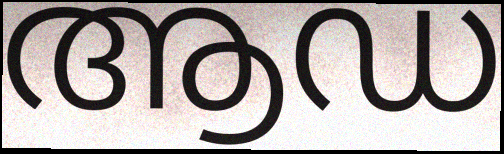
ആഡ